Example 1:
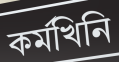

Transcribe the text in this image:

কৰ্মখিনি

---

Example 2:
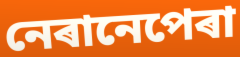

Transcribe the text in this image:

নেৰানেপেৰা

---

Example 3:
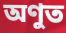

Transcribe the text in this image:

অণুত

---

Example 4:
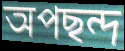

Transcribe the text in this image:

অপছন্দ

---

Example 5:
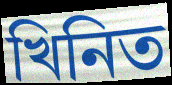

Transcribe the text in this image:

খিনিত